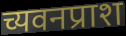
च्‍यवनप्राश